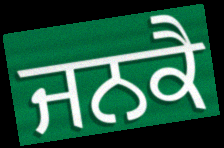
ਜਨਕੈ